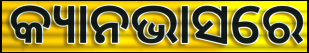
କ୍ୟାନଭାସରେ